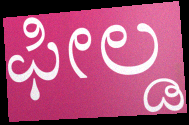
ಫೀಲ್ಡ